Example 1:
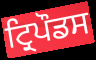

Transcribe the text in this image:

ਟ੍ਰਿਪੌਡਸ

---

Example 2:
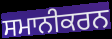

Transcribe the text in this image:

ਸਮਾਨੀਕਰਨ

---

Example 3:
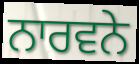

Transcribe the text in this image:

ਨਾਰਵਨੇ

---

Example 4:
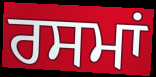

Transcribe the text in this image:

ਰਸਮਾਂ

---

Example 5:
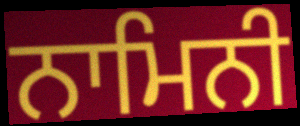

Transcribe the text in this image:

ਨਾਮਿਨੀ